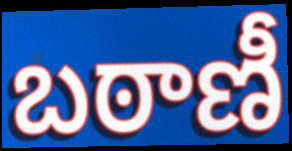
బఠాణీ